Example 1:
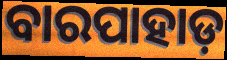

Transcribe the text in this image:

ବାରପାହାଡ଼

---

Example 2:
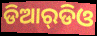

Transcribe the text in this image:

ଡିଆର୍‌ଡିଓ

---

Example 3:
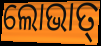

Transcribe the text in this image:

ଲୋଭାତ୍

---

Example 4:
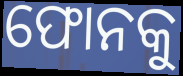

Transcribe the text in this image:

ଫୋନକୁ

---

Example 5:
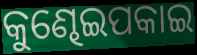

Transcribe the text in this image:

କୁଣ୍ଢେଇପକାଇ